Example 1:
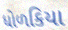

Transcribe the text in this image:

ધોળકિયા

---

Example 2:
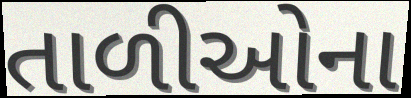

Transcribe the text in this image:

તાળીઓના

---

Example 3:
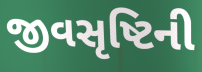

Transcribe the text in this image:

જીવસૃષ્ટિની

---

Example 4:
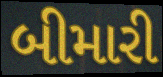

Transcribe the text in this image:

બીમારી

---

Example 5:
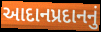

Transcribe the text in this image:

આદાનપ્રદાનનું